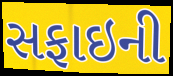
સફાઇની